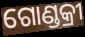
ଗୋଣ୍ଡକ୍ରୀ